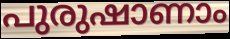
പുരുഷാണാം